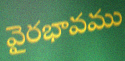
వైరభావము